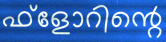
ഫ്ളോറിന്റെ